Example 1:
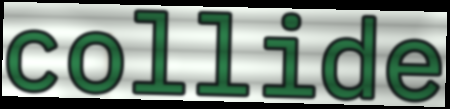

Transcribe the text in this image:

collide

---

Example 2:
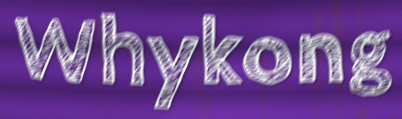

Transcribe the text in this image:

Whykong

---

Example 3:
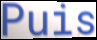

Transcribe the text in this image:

Puis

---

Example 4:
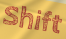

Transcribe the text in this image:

Shift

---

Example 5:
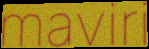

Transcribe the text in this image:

maviri